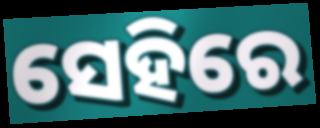
ସେହିରେ